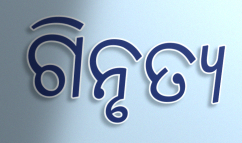
ଗିନୃତ୍ୟ